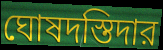
ঘোষদস্তিদার